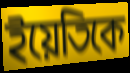
ইয়েতিকে